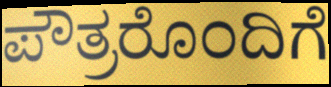
ಪೌತ್ರರೊಂದಿಗೆ